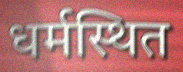
धर्मस्थित